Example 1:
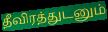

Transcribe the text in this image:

தீவிரத்துடனும்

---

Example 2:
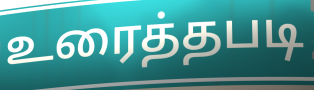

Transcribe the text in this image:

உரைத்தபடி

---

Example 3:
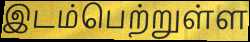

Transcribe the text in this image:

இடம்பெற்றுள்ள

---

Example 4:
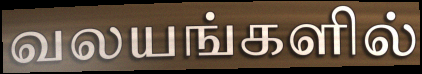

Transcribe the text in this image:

வலயங்களில்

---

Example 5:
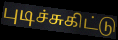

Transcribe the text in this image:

புடிச்சுகிட்டு